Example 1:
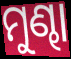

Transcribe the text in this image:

ମୁଣ୍ଢା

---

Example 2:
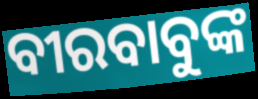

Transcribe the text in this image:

ବୀରବାବୁଙ୍କ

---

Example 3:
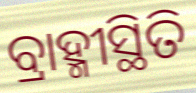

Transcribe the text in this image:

ବ୍ରାହ୍ମୀସ୍ଥିତି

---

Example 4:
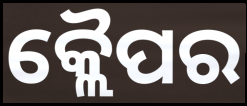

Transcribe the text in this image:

କ୍ଲୈପର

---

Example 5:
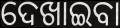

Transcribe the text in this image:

ଦେଖାଇବା